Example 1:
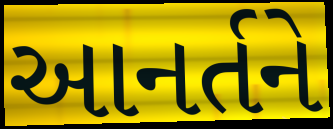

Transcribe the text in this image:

આનર્તને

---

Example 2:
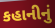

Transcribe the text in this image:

કહાનીનું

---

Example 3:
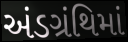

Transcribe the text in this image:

અંડગ્રંથિમાં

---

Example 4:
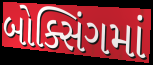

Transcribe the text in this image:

બોક્સિંગમાં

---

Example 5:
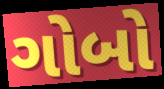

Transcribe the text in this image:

ગોબો